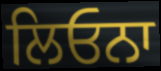
ਲਿਓਨਾ